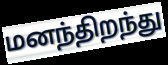
மனந்திறந்து